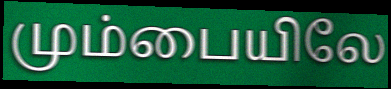
மும்பையிலே